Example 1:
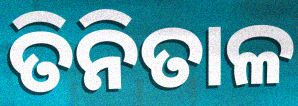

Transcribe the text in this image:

ତିନିତାଳ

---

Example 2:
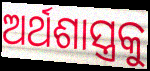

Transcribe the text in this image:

ଅର୍ଥଶାସ୍ତ୍ରକୁ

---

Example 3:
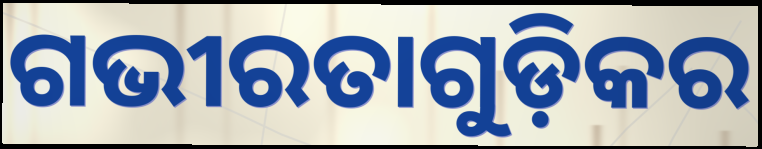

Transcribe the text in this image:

ଗଭୀରତାଗୁଡ଼ିକର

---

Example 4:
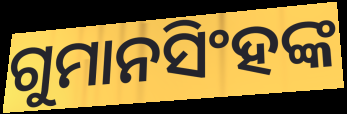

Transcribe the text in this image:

ଗୁମାନସିଂହଙ୍କ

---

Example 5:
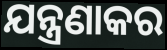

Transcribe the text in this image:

ଯନ୍ତ୍ରଣାକର